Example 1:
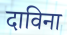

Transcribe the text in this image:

दाविना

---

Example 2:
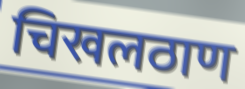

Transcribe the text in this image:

चिखलठाण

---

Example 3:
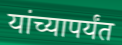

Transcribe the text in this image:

यांच्यापर्यंत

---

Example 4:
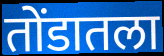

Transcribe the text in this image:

तोंडातला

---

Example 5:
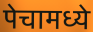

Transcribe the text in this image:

पेचामध्ये